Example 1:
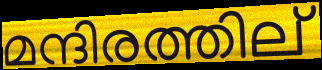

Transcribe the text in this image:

മന്ദിരത്തില്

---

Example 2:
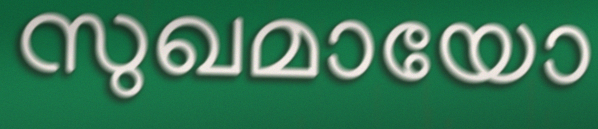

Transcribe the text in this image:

സുഖമായോ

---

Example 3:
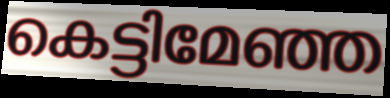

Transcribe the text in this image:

കെട്ടിമേഞ്ഞ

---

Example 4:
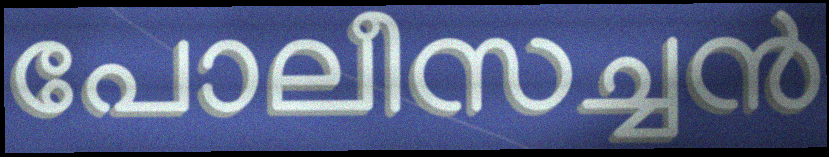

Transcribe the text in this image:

പോലീസച്ചൻ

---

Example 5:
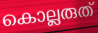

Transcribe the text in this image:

കൊല്ലരുത്